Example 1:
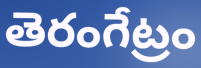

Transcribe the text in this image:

తెరంగేట్రం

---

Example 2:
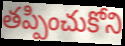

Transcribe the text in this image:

తప్పించుకోని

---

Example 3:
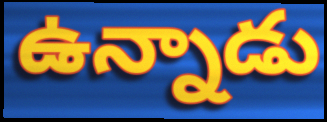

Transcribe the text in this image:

ఉన్నాడు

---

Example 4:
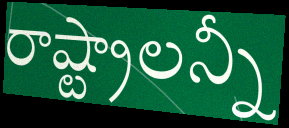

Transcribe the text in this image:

రాష్ట్రాలన్నీ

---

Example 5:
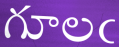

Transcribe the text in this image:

గూలఁ